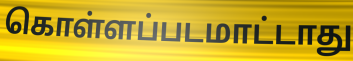
கொள்ளப்படமாட்டாது